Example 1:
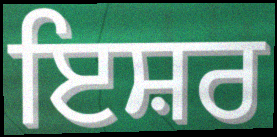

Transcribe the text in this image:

ਇਸ਼ਰ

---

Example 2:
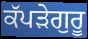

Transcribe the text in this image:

ਕੱਪੜੇਗੁਰੂ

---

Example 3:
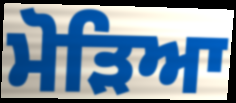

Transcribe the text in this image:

ਮੋੜਿਆ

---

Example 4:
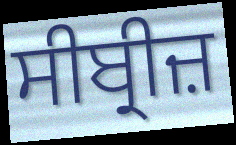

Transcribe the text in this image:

ਸੀਬ੍ਰੀਜ਼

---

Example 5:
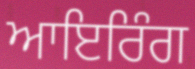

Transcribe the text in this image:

ਆਇਰਿੰਗ